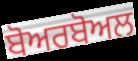
ਬੋਅਰਬੋਅਲ